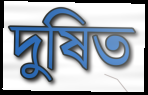
দুষিত